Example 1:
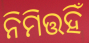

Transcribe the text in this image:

ନିମିତ୍ତହିଁ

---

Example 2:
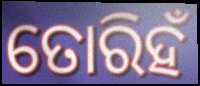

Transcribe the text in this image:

ତୋରିହଁ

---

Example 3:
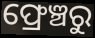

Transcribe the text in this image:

ଫ୍ରେଞ୍ଚରୁ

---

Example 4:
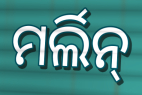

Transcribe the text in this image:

ମର୍ଲିନ୍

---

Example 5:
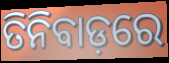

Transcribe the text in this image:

ତିନିବାଡ଼ରେ